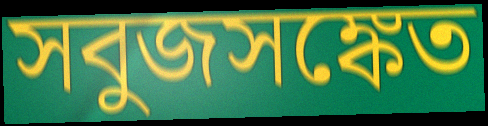
সবুজসঙ্কেত